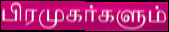
பிரமுகர்களும்